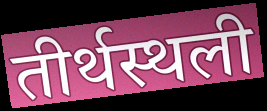
तीर्थस्थली